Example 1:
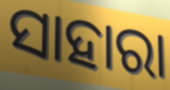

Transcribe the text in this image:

ସାହାରା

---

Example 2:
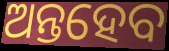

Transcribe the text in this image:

ଅନ୍ତହେବ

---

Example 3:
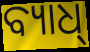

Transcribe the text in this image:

ବ୍ୟାଧ୍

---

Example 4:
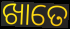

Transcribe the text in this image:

ଖାତେ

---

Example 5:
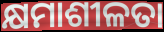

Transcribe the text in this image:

କ୍ଷମାଶୀଳତା